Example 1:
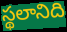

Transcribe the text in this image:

స్థలానిది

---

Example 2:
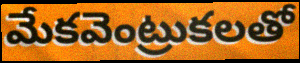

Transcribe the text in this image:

మేకవెంట్రుకలతో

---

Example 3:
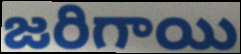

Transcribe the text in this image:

జరిగాయి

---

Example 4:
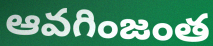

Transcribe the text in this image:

ఆవగింజంత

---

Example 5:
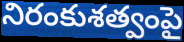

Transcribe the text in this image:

నిరంకుశత్వంపై